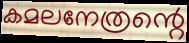
കമലനേത്രന്റെ